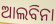
ଆଲବିନା